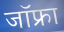
जॉफ्रा